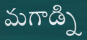
మగాడ్ని